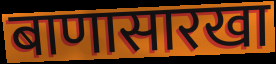
बाणासारखा